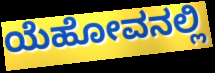
ಯೆಹೋವನಲ್ಲಿ